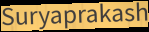
Suryaprakash